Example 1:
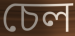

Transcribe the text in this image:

চেল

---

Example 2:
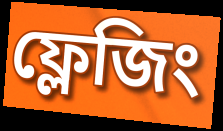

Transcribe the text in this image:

ফ্লেজিং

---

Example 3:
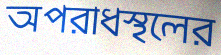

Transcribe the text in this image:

অপরাধস্থলের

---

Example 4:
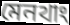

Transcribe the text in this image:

মেনথাং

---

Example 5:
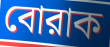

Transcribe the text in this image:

বোরাক